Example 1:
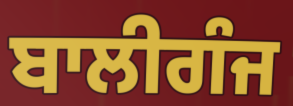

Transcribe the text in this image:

ਬਾਲੀਗੰਜ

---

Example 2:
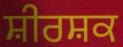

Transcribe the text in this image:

ਸ਼ੀਰਸ਼ਕ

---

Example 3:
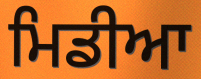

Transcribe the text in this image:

ਮਿਡੀਆ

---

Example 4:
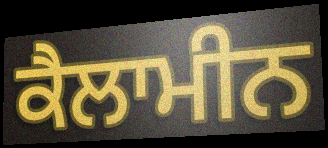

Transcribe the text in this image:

ਕੈਲਾਮੀਨ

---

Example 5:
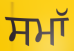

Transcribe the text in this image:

ਸਮਾੱ